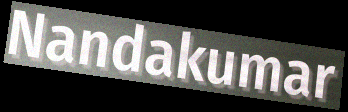
Nandakumar